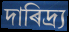
দাৰিদ্ৰ্য